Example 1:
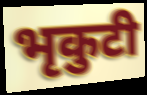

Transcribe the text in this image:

भृकुटी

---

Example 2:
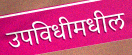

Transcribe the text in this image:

उपविधीमधील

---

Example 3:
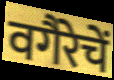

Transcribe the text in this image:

वगैरेचें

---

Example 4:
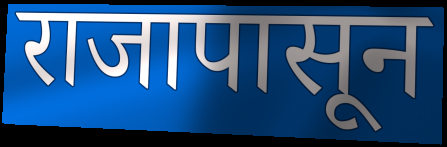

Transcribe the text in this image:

राजापासून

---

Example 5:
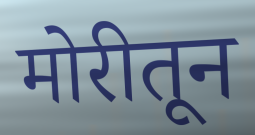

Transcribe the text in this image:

मोरीतून